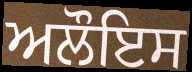
ਅਲੌਇਸ